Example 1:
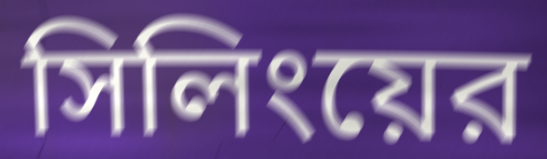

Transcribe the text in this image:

সিলিংয়ের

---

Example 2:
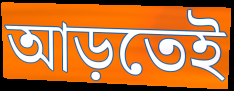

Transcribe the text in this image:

আড়তেই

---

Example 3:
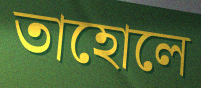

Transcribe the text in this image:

তাহোলে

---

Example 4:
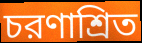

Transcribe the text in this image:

চরণাশ্রিত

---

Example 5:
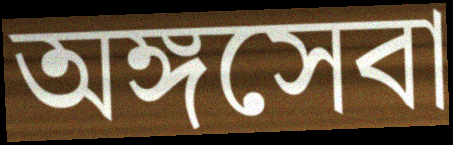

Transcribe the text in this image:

অঙ্গসেবা